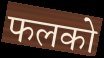
फलको